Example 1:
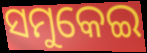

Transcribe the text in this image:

ସମୁକେଇ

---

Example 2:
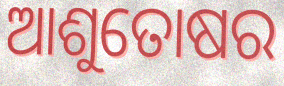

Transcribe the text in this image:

ଆଶୁତୋଷର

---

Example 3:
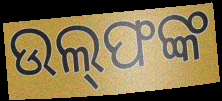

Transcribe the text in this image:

ଉଲ୍‌ଫଙ୍କ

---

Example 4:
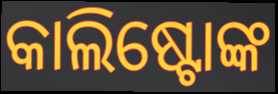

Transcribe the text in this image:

କାଲିଷ୍ଟୋଙ୍କ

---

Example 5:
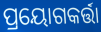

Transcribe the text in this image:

ପ୍ରୟୋଗକର୍ତ୍ତା